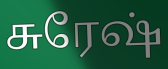
சுரேஷ்